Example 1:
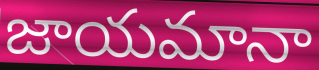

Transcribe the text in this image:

జాయమానా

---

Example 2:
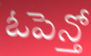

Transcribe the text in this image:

ఓపెన్తో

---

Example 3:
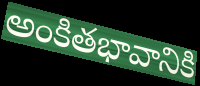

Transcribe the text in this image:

అంకితభావానికి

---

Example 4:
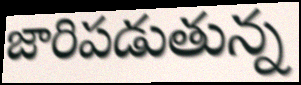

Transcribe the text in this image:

జారిపడుతున్న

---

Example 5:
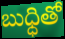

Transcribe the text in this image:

బుధ్ధితో